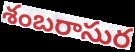
శంబరాసుర